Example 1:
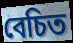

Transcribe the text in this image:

বেচিত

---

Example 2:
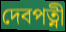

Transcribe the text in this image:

দেবপত্নী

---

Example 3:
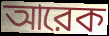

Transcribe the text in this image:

আরেক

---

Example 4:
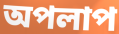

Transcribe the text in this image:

অপলাপ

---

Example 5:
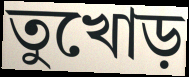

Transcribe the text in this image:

তুখোড়